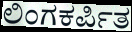
ಲಿಂಗಕರ್ಪಿತ